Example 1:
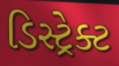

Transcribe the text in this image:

ડિસ્ટ્રેક્ટ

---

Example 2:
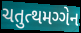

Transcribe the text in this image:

ચતુત્થમગ્ગેન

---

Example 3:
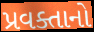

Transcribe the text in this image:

પ્રવક્તાનો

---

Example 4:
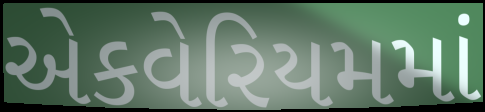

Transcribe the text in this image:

એકવેરિયમમાં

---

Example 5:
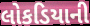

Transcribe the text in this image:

લોકડિયાની